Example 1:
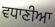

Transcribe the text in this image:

ਵਧਾਣੀਆ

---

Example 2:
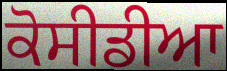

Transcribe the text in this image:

ਕੋਸੀਡੀਆ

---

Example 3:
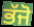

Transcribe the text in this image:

ਭੱਜੋ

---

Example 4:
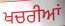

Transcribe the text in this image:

ਖਚਰੀਆਂ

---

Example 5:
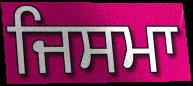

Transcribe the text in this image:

ਜਿਸਮਾ